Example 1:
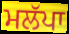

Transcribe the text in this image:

ਮਲੱਪਾ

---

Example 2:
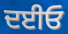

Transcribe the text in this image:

ਦਈਓ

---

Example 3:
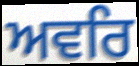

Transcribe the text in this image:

ਅਵਰਿ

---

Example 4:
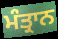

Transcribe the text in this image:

ਮੰਤ੍ਰਾਨ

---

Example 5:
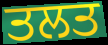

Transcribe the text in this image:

ਤਲਤ